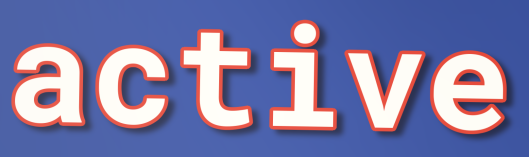
active